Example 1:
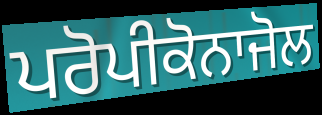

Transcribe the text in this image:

ਪਰੋਪੀਕੋਨਾਜੋਲ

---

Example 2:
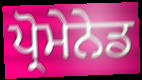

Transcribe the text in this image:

ਪ੍ਰੋਮੇਨੇਡ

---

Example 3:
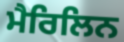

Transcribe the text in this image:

ਮੈਰਿਲਿਨ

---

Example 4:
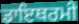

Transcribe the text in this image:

ਡਾਇਥਰਮੀ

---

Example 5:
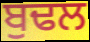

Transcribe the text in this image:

ਬੁਢਲ